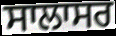
ਸਾਲਾਸਰ